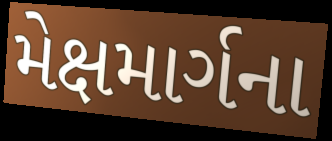
મેક્ષમાર્ગના